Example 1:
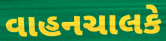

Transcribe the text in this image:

વાહનચાલકે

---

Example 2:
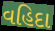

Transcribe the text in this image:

વહિદા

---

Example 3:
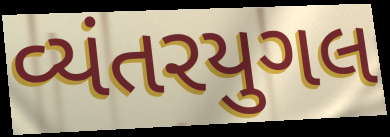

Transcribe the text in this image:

વ્યંતરયુગલ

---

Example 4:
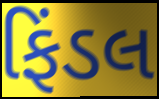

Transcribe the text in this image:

ફિંડલ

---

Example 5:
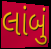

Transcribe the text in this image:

લાંબું